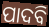
ପାଦବି